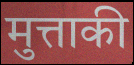
मुत्ताकी